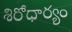
శిరోధార్యం